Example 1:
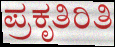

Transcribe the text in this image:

ಪ್ರಕೃತಿರಿತಿ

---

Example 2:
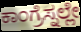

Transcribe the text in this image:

ಕಾಂಗ್ರೆಸ್ನಲ್ಲೇ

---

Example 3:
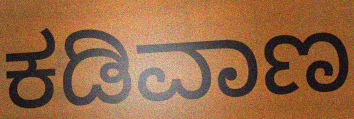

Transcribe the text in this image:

ಕಡಿವಾಣ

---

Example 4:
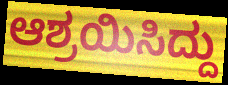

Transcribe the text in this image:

ಆಶ್ರಯಿಸಿದ್ದು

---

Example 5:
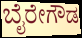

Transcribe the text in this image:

ಬೈರೇಗೌಡ